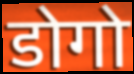
डोगो